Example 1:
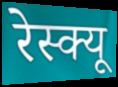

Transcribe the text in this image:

रेस्क्यू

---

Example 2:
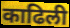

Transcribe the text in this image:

काढिली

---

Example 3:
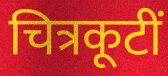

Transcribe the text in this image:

चित्रकूटीं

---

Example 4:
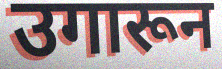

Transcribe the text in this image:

उगारून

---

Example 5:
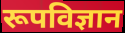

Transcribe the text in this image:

रूपविज्ञान